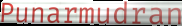
Punarmudran